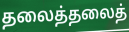
தலைத்தலைத்